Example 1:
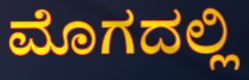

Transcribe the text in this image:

ಮೊಗದಲ್ಲಿ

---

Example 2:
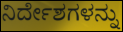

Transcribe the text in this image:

ನಿರ್ದೇಶಗಳನ್ನು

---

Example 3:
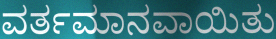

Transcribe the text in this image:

ವರ್ತಮಾನವಾಯಿತು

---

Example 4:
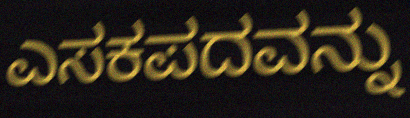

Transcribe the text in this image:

ಎಸಕಪದವನ್ನು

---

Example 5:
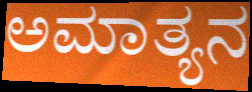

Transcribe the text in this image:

ಅಮಾತ್ಯನ